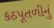
કઠપૂતળીનું